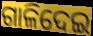
ଗାଳିଦେଇ